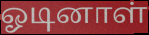
ஓடினாள்